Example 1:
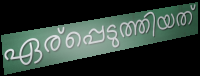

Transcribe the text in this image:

ഏര്പ്പെടുത്തിയത്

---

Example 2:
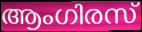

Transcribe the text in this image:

ആംഗിരസ്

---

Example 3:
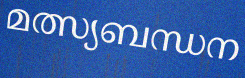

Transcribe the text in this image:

മത്സ്യബന്ധന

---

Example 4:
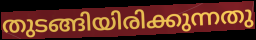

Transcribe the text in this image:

തുടങ്ങിയിരിക്കുന്നതു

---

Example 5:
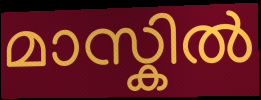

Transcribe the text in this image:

മാസ്കിൽ